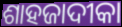
ଶାହଜାଦୀକା